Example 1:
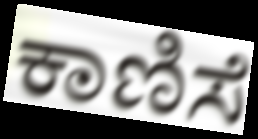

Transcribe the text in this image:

ಕಾಣಿಸೆ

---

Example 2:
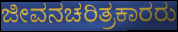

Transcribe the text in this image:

ಜೀವನಚರಿತ್ರಕಾರರು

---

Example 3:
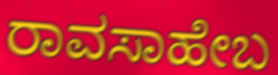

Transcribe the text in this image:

ರಾವಸಾಹೇಬ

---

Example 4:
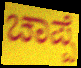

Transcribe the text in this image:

ಚಾಪ್ಪೆ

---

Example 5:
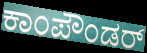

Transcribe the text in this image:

ಕಾಂಪೌಂಡರ್